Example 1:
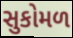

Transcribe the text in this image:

સુકોમળ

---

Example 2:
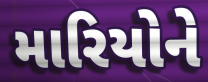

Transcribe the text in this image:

મારિયોને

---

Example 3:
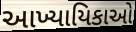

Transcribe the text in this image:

આખ્યાયિકાઓ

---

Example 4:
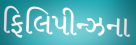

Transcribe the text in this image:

ફિલિપીન્ઝના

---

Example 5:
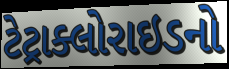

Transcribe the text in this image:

ટેટ્રાક્લોરાઇડનો